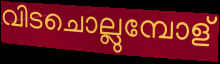
വിടചൊല്ലുമ്പോള്